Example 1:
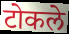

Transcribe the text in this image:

टोकले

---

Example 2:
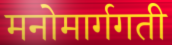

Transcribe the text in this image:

मनोमार्गगती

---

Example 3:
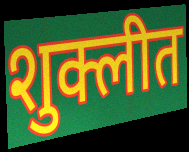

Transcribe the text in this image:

शुक्लीत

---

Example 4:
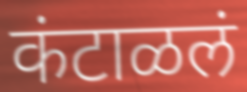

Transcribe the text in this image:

कंटाळलं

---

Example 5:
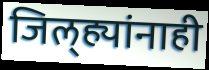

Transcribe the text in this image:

जिल्ह्यांनाही